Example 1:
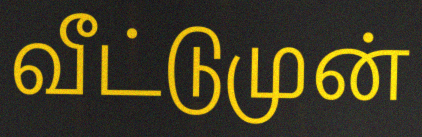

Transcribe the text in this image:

வீட்டுமுன்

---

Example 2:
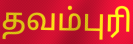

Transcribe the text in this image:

தவம்புரி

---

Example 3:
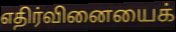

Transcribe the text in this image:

எதிர்வினையைக்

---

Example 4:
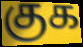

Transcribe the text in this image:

குக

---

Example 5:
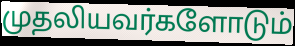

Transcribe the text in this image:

முதலியவர்களோடும்